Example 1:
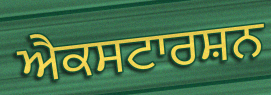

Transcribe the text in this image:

ਐਕਸਟਾਰਸ਼ਨ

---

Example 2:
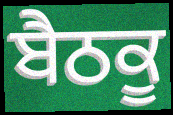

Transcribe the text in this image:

ਬੈਠਕੂ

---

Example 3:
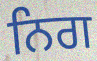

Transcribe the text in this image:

ਨਿਗ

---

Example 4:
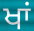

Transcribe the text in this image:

ਖਾਂ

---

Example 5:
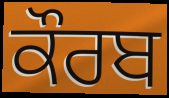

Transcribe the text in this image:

ਕੌਰਬ